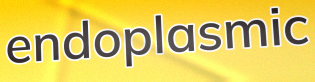
endoplasmic